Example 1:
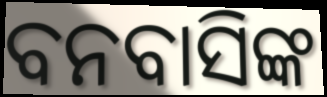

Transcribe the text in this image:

ବନବାସିଙ୍କ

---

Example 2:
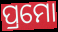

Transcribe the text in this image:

ପ୍ରମୋ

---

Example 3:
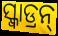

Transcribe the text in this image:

ସ୍କ୍ୱାଡ୍ରନ୍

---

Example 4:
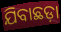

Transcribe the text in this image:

ଯିବାଛଡ଼ା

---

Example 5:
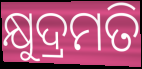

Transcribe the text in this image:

କ୍ଷୁଦ୍ରମତି